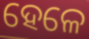
ହେଳେ